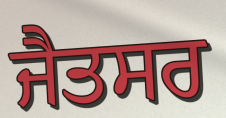
ਜੈਤਸਰ